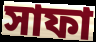
সাফা